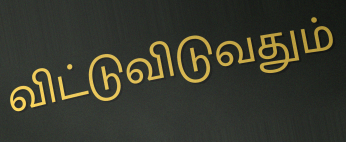
விட்டுவிடுவதும்